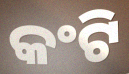
କଂଟି